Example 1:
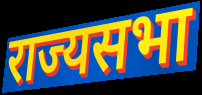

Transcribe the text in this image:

राज्यसभा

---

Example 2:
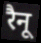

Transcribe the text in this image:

रैनू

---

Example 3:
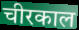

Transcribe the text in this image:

चीरकाल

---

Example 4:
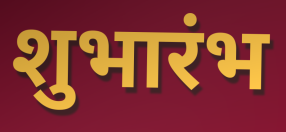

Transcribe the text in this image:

शुभारंभ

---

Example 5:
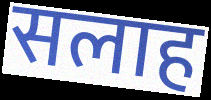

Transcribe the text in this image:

सलाह